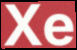
Xe